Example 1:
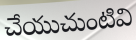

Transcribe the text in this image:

చేయుచుంటివి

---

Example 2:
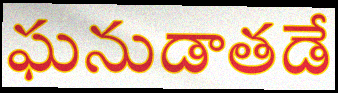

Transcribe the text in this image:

ఘనుడాతడే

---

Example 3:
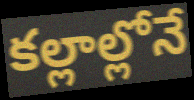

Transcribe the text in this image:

కల్లాల్లోనే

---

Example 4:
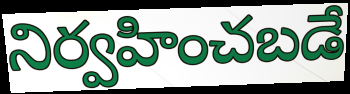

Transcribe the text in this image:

నిర్వహించబడే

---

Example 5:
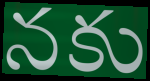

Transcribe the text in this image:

నకు